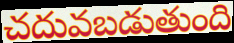
చదువబడుతుంది